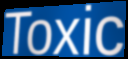
Toxic